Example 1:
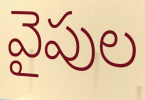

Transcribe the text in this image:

వైపుల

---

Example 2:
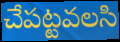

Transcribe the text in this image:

చేపట్టవలసి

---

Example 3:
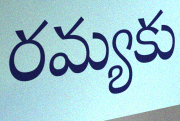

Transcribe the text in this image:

రమ్యకు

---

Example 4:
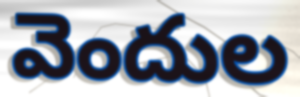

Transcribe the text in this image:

వెందుల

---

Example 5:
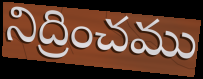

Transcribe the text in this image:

నిద్రించము